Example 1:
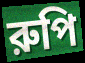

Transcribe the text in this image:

রুপি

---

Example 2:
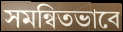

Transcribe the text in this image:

সমন্বিতভাবে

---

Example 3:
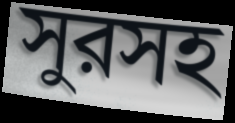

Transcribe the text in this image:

সুরসহ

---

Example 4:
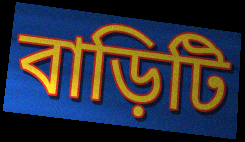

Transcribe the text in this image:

বাড়িটি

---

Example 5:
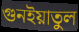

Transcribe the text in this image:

গুনইয়াতুল